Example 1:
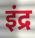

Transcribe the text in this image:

इंद्र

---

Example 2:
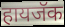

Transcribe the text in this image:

हायजॅक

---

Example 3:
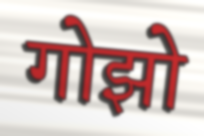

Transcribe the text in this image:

गोझो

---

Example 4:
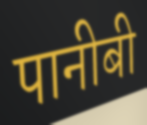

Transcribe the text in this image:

पानीबी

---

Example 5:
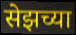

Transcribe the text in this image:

सेझच्या